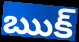
ఋక్